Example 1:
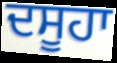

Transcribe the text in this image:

ਦਸੂਹਾ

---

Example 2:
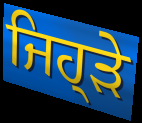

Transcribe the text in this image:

ਜਿਹ੍ੜੇ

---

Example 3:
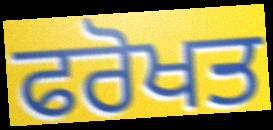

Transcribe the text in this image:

ਫਰੋਖਤ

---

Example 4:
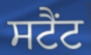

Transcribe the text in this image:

ਸਟੈਂਟ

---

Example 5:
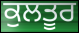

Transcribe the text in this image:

ਕੁਲਤੂਰ